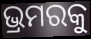
ଭ୍ରମରକୁ